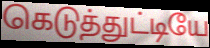
கெடுத்துட்டியே